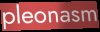
pleonasm